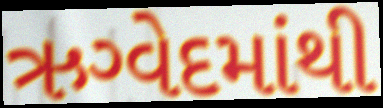
ઋગ્વેદમાંથી